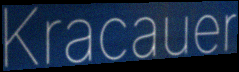
Kracauer